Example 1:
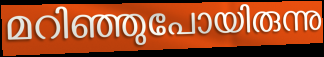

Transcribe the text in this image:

മറിഞ്ഞുപോയിരുന്നു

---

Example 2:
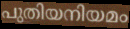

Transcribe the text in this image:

പുതിയനിയമം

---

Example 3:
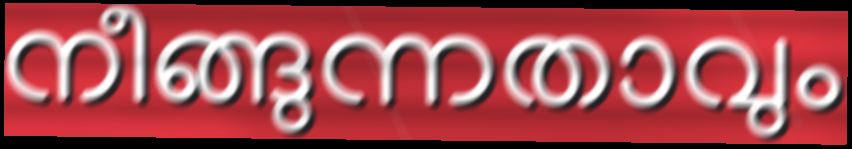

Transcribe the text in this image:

നീങ്ങുന്നതാവും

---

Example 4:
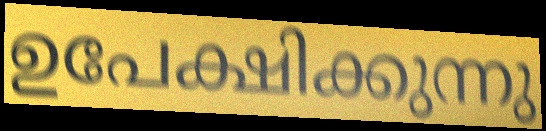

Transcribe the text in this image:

ഉപേക്ഷിക്കുന്നു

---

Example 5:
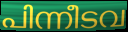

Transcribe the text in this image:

പിന്നീടവ